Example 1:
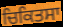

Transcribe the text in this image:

ਚਿਕਿਤਸਾ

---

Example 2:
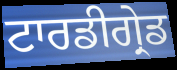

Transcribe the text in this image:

ਟਾਰਡੀਗ੍ਰੇਡ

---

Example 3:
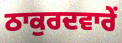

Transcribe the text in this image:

ਠਾਕੁਰਦਵਾਰੇਂ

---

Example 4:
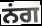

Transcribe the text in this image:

ਨਂਗ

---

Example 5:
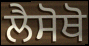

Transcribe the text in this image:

ਲੈਸੋਥੋ